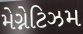
મેગ્નેટિઝમ